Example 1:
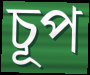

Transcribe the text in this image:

চূপ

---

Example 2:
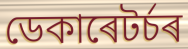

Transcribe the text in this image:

ডেকাৰেটৰ্চৰ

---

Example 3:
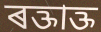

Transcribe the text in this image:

ৰক্তাক্ত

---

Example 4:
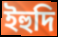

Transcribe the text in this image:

ইহুদি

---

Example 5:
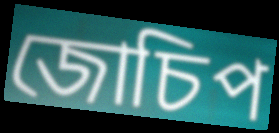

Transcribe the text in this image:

জোচিপ